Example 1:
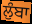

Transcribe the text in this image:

ਲੁੰਬਾ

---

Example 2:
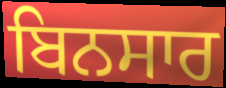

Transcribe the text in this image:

ਬਿਨਸਾਰ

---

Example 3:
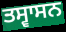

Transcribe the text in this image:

ਤਸ੍ਵਾਸਨ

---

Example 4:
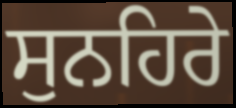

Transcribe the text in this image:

ਸੁਨਹਿਰੇ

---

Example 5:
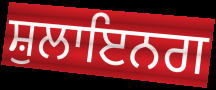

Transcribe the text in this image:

ਸ਼ੁਲਾਇਨਗ